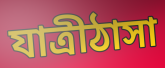
যাত্রীঠাসা